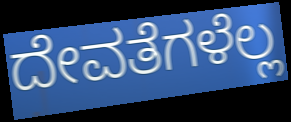
ದೇವತೆಗಳೆಲ್ಲ